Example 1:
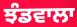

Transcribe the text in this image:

ਝੰਡਵਾਲਾ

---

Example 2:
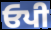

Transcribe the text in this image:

ਓਪੀ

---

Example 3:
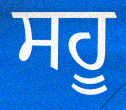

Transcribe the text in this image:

ਸਹੂ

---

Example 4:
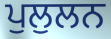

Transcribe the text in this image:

ਪੁਲੁਲਨ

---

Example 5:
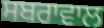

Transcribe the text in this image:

ਸਬਰਾਵਾਲ